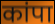
कांपा